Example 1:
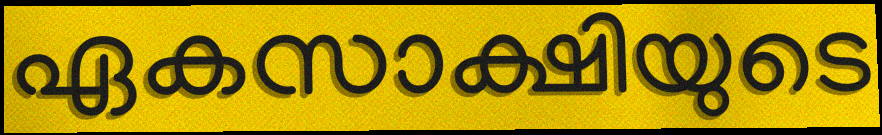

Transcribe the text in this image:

ഏകസാക്ഷിയുടെ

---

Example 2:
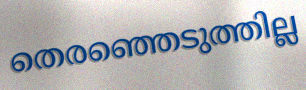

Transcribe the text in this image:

തെരഞ്ഞെടുത്തില്ല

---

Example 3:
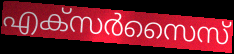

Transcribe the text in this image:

എക്സർസൈസ്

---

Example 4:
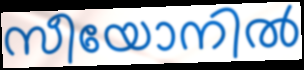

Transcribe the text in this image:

സീയോനിൽ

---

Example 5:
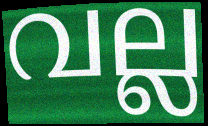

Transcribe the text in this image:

വല്ല